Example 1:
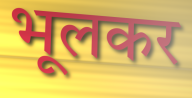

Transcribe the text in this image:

भूलकर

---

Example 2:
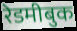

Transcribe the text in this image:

रेडमीबुक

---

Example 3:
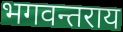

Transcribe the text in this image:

भगवन्तराय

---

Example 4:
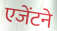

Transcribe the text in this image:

एजेंटने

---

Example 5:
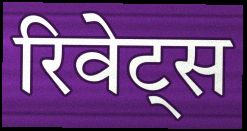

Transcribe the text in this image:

रिवेट्स